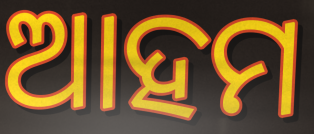
ଆହମ